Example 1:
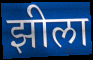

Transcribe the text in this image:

झीला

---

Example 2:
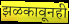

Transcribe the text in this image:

झळकावूनही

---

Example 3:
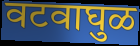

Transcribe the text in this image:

वटवाघुळ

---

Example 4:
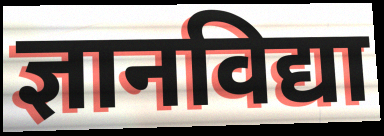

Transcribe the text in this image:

ज्ञानविद्या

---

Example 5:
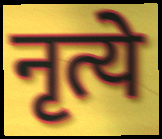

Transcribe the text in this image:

नृत्ये